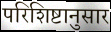
परिशिष्टानुसार